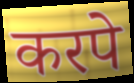
करपे